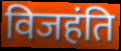
विजहंति